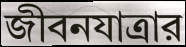
জীবনযাত্রার